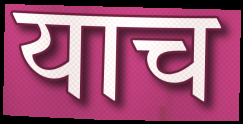
याच